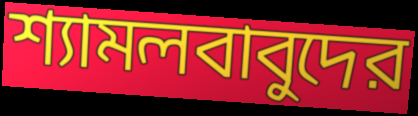
শ্যামলবাবুদের